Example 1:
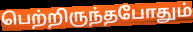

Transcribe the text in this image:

பெற்றிருந்தபோதும்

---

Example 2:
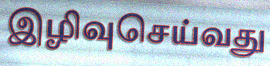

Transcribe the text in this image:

இழிவுசெய்வது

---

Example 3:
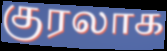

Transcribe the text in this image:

குரலாக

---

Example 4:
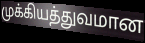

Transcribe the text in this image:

முக்கியத்துவமான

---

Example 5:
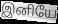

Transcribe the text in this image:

இனியே